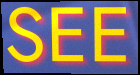
SEE